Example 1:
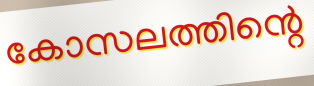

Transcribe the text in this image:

കോസലത്തിന്റെ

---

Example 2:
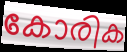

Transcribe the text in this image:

കോരിക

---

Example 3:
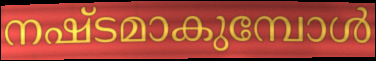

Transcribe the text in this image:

നഷ്ടമാകുമ്പോൾ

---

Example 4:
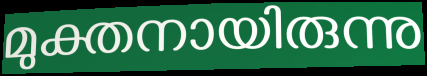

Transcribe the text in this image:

മുക്തനായിരുന്നു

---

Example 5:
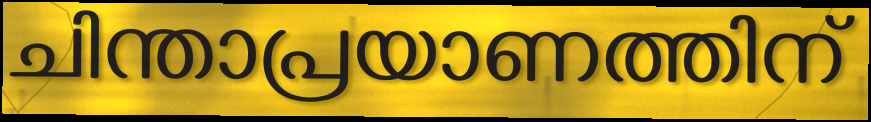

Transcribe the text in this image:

ചിന്താപ്രയാണത്തിന്